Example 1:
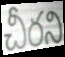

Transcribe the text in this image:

చీరని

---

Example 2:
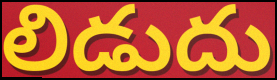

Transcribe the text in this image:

లిడుదు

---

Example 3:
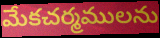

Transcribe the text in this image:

మేకచర్మములను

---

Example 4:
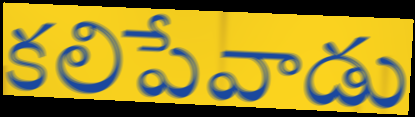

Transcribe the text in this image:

కలిపేవాడు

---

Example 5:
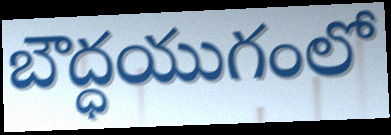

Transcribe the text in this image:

బౌద్ధయుగంలో